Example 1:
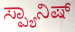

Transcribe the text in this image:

ಸ್ಪ್ಯಾನಿಷ್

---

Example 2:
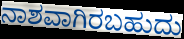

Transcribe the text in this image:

ನಾಶವಾಗಿರಬಹುದು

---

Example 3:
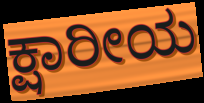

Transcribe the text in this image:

ಕ್ಷಾರೀಯ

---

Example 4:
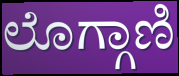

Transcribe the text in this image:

ಲೊಗ್ಗಾಣಿ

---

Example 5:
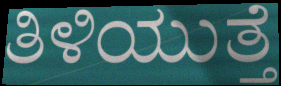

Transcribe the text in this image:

ತಿಳಿಯುತ್ತೆ